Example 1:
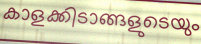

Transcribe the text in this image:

കാളക്കിടാങ്ങളുടെയും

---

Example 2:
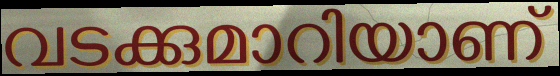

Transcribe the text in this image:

വടക്കുമാറിയാണ്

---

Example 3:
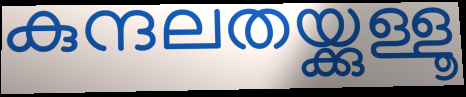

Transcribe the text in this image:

കുന്ദലതയ്ക്കുള്ളൂ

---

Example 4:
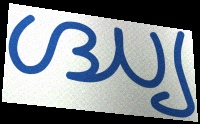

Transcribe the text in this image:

ഗ്ദ്ധ്യ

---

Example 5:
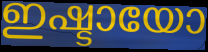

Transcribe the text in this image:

ഇഷ്ടായോ